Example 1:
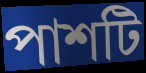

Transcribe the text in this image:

পাশটি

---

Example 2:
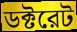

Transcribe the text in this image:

ডক্টরেট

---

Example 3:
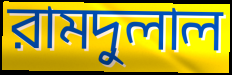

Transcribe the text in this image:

রামদুলাল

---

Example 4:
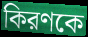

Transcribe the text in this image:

কিরণকে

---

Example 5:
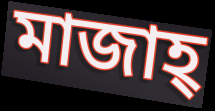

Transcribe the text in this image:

মাজাহ্